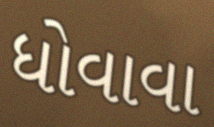
ધોવાવા